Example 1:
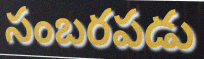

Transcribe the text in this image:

సంబరపడు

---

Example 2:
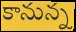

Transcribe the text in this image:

కానున్న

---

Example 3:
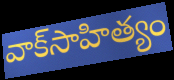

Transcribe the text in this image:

వాక్‌సాహిత్యం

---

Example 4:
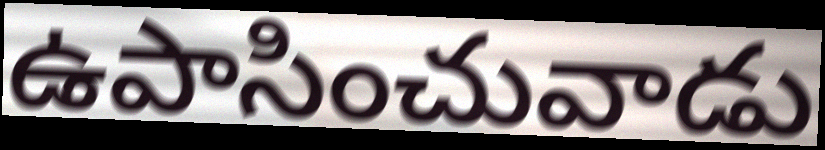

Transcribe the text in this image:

ఉపాసించువాడు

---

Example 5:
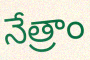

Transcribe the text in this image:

నేత్రాం